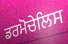
ਡਰਮੋਚੇਲਿਸ